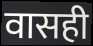
वासही